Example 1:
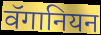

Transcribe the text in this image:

वॅगानियन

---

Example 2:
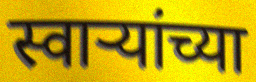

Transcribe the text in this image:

स्वाऱ्यांच्या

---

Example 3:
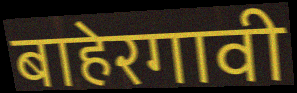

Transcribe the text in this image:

बाहेरगावी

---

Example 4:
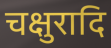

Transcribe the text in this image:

चक्षुरादि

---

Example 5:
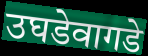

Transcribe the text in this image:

उघडेवागडे